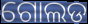
ଗୋଲଡ